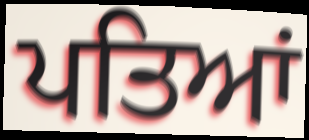
ਪਤਿਆਂ